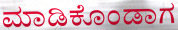
ಮಾಡಿಕೊಂಡಾಗ